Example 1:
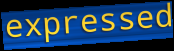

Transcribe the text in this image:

expressed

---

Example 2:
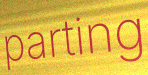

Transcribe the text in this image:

parting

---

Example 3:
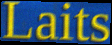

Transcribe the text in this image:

Laits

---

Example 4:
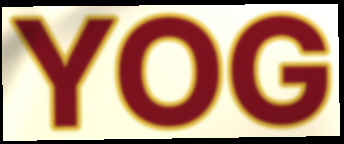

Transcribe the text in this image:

YOG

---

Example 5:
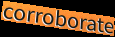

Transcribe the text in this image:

corroborate